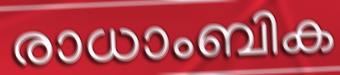
രാധാംബിക